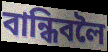
বান্ধিবলৈ